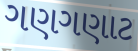
ગણગણાટ